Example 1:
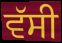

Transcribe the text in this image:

ਵੱਸੀ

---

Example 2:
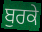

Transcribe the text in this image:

ਬੁਰਕੇ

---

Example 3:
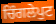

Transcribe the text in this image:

ਚਿੰਗਲੇਪੁਟ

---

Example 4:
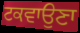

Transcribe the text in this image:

ਟਕਵਾਉਣਾ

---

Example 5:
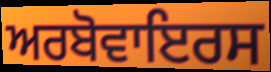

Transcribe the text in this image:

ਅਰਬੋਵਾਇਰਸ